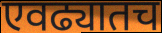
एवढ्यातच